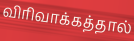
விரிவாக்கத்தால்